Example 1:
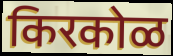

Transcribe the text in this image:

किरकोळ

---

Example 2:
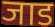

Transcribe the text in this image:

जाड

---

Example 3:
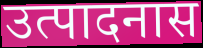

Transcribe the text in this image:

उत्पादनास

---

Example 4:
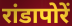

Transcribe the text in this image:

रांडापोरें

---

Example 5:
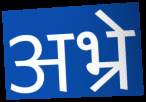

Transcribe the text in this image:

अभ्रे